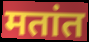
मतांत